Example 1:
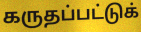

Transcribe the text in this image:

கருதப்பட்டுக்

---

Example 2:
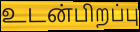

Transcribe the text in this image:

உடன்பிறப்பு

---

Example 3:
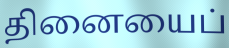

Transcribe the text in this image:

தினையைப்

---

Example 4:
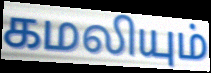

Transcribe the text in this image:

கமலியும்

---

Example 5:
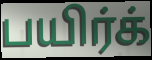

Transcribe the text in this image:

பயிர்க்